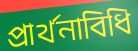
প্রার্থনাবিধি